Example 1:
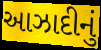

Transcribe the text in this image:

આઝાદીનું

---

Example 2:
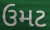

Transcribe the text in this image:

ઉમટ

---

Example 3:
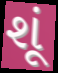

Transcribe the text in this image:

શૂં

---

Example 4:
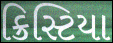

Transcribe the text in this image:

ક્રિસ્ટિયા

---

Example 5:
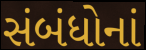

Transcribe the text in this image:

સંબંધોનાં